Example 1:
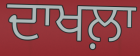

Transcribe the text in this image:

ਦਾਖਲ਼ਾ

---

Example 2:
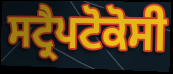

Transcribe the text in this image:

ਸਟ੍ਰੈਪਟੋਕੋਸੀ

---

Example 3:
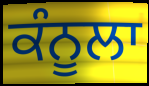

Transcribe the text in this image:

ਕੰਨੂਲਾ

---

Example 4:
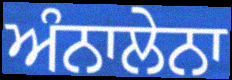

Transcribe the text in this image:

ਅੰਨਾਲੇਨਾ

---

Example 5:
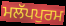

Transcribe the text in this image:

ਮਲੱਪਪੁਰਮ